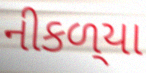
નીકળ્‌યા